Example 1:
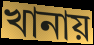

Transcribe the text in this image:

খানায়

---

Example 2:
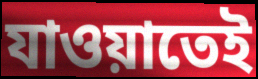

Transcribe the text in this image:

যাওয়াতেই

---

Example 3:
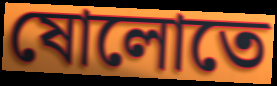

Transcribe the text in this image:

ষোলোতে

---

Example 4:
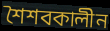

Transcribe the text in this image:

শৈশবকালীন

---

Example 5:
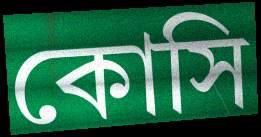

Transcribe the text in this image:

কোসি